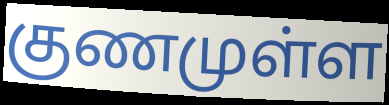
குணமுள்ள